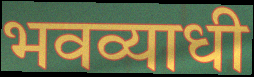
भवव्याधी